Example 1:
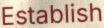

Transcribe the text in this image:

Establish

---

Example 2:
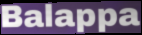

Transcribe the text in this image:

Balappa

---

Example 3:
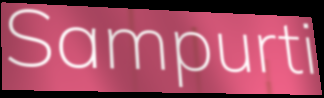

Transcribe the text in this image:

Sampurti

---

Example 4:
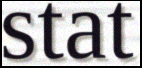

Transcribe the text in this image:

stat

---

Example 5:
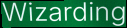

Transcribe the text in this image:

Wizarding